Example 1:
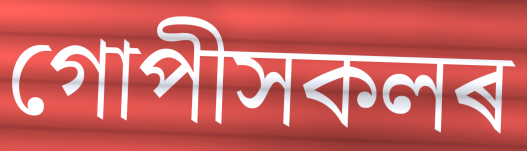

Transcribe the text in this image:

গোপীসকলৰ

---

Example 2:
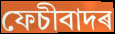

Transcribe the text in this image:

ফেচীবাদৰ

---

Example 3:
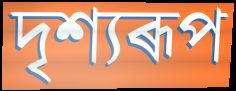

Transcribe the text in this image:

দৃশ্যৰূপ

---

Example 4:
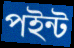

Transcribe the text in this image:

পইন্ট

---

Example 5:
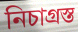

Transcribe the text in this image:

নিচাগ্ৰস্ত